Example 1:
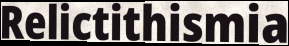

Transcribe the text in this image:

Relictithismia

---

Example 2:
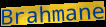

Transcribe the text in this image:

Brahmane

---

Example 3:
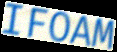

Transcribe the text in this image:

IFOAM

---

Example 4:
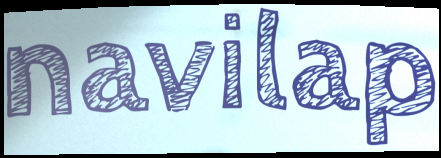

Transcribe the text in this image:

navilap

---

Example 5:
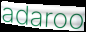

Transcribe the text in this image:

adaroo